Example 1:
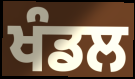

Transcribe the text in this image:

ਖੰਡਲ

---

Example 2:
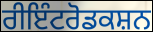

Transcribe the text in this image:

ਰੀਇੰਟਰੋਡਕਸ਼ਨ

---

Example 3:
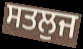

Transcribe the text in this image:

ਸਤਲੁਜ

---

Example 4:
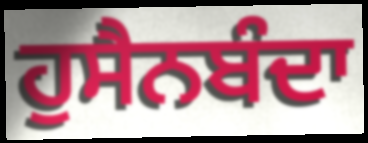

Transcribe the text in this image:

ਹੁਸੈਨਬੰਦਾ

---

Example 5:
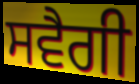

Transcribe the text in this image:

ਸਵੈਗੀ